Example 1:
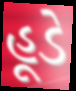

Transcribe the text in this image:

હૂડે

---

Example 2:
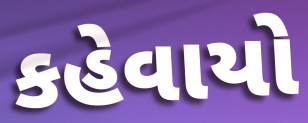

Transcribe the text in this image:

કહેવાયો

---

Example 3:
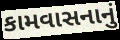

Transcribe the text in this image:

કામવાસનાનું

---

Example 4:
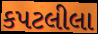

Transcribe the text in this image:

કપટલીલા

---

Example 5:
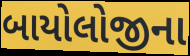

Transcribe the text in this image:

બાયોલોજીના